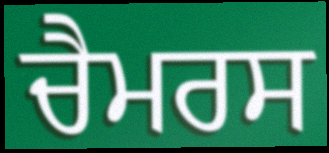
ਚੈਮਰਸ